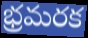
భ్రమరక